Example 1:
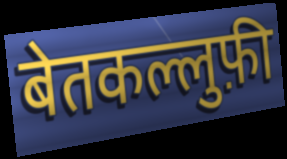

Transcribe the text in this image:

बेतकल्लुफ़ी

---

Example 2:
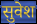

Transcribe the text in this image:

सुवेश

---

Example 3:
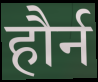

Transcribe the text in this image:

हौर्न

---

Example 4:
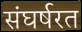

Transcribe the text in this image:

संघर्षरत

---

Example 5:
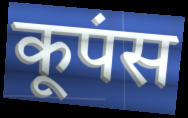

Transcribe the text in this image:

कूपंस